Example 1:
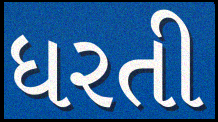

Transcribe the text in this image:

ધરતી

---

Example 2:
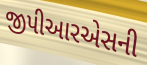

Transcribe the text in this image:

જીપીઆરએસની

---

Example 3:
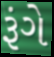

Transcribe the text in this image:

રૂંગે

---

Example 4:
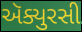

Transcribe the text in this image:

ઍક્યુરસી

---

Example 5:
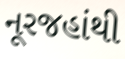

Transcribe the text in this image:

નૂરજહાંથી